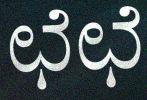
ಛೆಛೆ